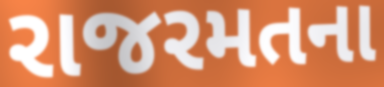
રાજરમતના